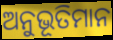
ଅନୁଭୂତିମାନ